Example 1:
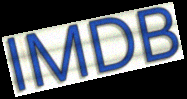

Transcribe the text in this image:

IMDB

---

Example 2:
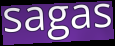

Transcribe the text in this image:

sagas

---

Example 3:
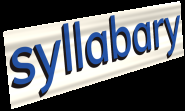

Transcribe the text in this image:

syllabary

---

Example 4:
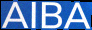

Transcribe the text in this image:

AIBA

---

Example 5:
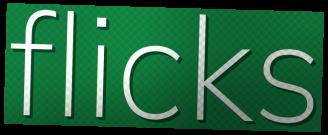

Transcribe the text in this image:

flicks